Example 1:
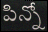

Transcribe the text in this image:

పిన్నో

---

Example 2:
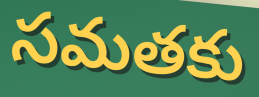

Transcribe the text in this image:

సమతకు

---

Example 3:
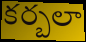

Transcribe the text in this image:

కర్బలా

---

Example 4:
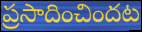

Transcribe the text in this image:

ప్రసాదించిందట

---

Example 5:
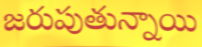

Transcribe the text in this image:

జరుపుతున్నాయి